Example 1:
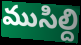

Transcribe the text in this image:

ముసిల్ది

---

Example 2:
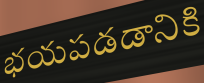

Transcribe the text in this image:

భయపడడానికి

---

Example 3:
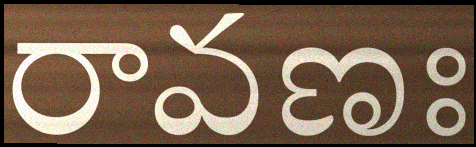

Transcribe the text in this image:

రావణః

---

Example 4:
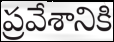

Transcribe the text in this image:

ప్రవేశానికి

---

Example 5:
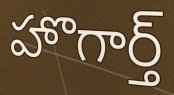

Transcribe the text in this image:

హొగార్త్